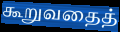
கூறுவதைத்